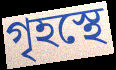
গৃহস্থে